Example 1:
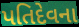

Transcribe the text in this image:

પતિદેવના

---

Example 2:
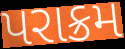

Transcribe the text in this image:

પરાક્રમ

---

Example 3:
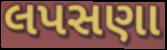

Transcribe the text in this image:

લપસણા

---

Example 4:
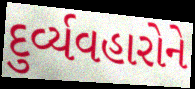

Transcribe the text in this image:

દુર્વ્યવહારોને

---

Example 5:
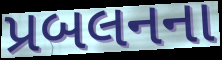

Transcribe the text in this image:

પ્રબલનના